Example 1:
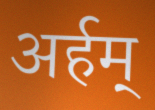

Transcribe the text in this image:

अर्हम्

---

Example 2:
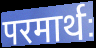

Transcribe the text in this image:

परमार्थः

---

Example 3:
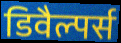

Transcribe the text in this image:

डिवैल्पर्स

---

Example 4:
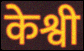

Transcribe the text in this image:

केश्वी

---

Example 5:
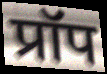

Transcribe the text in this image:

प्रॉप